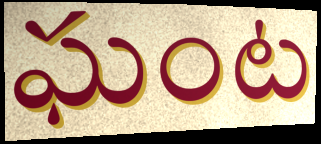
ఘంట